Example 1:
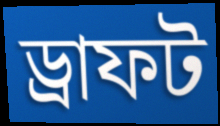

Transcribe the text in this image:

ড্রাফট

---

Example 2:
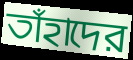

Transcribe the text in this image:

তাঁহাদের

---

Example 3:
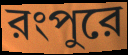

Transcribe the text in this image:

রংপুরে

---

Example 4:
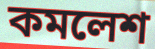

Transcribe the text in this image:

কমলেশ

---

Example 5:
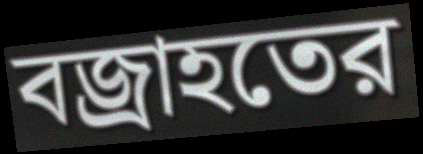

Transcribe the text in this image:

বজ্রাহতের